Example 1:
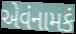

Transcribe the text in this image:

એવંનામકં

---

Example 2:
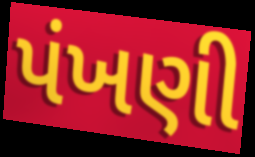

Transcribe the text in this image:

પંખણી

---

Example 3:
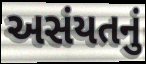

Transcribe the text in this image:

અસંયતનું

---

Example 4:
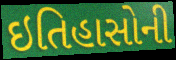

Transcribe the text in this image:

ઇતિહાસોની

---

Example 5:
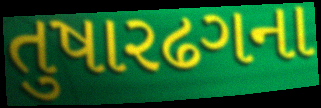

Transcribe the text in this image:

તુષારઢગના